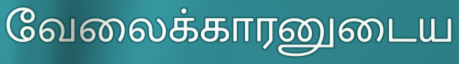
வேலைக்காரனுடைய